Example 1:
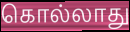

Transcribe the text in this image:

கொல்லாது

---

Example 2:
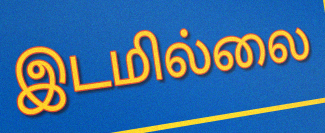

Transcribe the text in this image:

இடமில்லை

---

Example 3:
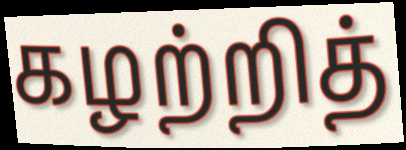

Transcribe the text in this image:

கழற்றித்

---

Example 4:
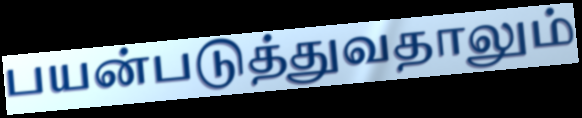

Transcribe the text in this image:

பயன்படுத்துவதாலும்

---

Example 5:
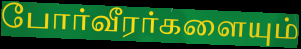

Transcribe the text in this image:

போர்வீரர்களையும்